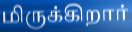
மிருக்கிறார்